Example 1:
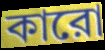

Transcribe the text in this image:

কারো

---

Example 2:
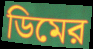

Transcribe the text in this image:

ডিমের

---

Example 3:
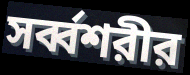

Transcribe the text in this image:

সর্ব্বশরীর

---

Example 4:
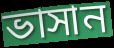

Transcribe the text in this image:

ভাসান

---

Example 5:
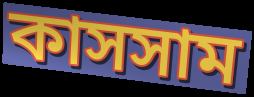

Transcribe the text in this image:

কাসসাম